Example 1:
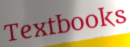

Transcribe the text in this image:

Textbooks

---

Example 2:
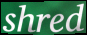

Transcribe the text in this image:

shred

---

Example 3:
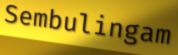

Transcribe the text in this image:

Sembulingam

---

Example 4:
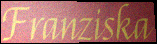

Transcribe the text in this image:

Franziska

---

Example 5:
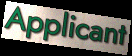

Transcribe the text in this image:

Applicant